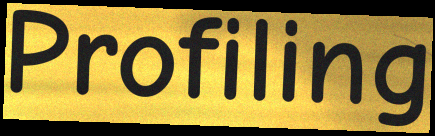
Profiling